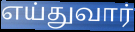
எய்துவார்